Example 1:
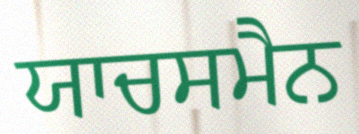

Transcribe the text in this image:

ਯਾਚਸਮੈਨ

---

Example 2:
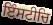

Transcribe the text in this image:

ਇੰਸਟੀਚਿ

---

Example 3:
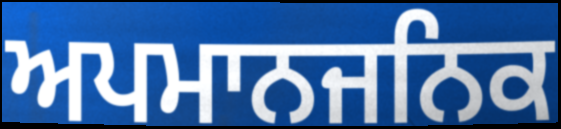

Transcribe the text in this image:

ਅਪਮਾਨਜਨਿਕ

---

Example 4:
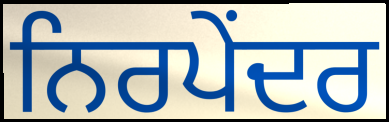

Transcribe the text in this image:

ਨਿਰਪੇਂਦਰ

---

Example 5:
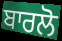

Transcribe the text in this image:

ਬਾਰਲੋ